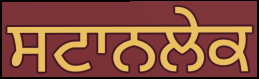
ਸਟਾਨਲੇਕ